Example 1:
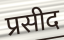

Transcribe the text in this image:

प्रसीद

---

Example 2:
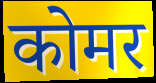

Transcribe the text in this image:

कोमर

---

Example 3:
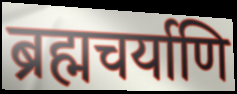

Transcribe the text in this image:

ब्रह्मचर्याणि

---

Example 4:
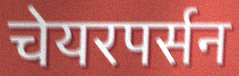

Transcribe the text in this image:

चेयरपर्सन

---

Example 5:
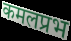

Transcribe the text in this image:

कमलप्रभ